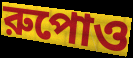
রুপোও